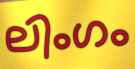
ലിംഗം